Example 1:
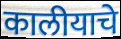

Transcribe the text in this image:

कालीयाचे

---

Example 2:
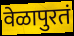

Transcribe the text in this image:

वेळापुरतं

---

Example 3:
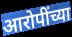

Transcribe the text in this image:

आरोपींच्या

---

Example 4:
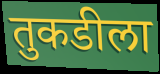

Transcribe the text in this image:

तुकडीला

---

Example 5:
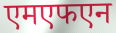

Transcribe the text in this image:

एमएफएन